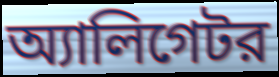
অ্যালিগেটর